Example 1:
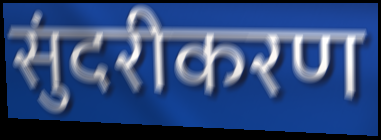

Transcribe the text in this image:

सुंदरीकरण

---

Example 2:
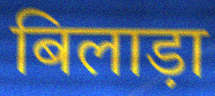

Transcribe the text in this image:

बिलाड़ा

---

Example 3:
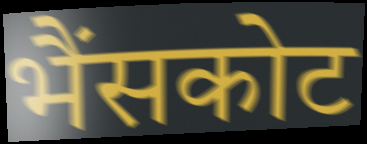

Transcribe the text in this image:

भैंसकोट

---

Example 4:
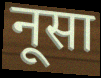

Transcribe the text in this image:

नूसा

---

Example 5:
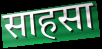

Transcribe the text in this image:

साहसा